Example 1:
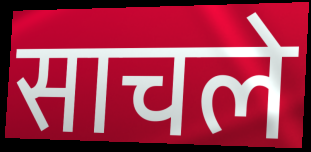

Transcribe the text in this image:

साचले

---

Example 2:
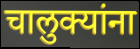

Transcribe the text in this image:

चालुक्यांना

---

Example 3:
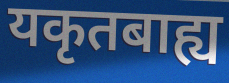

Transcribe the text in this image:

यकृतबाह्य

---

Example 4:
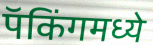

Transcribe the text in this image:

पॅकिंगमध्ये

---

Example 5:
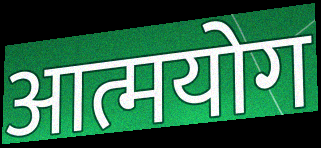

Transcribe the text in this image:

आत्मयोग